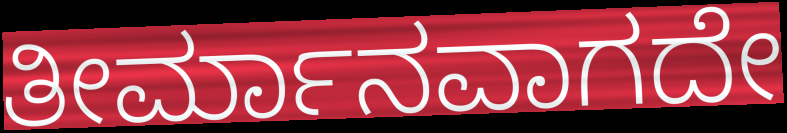
ತೀರ್ಮಾನವಾಗದೇ